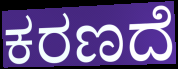
ಕರಣದೆ